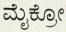
ಮೈಕ್ರೋ